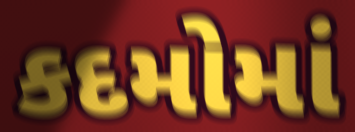
કદમોમાં